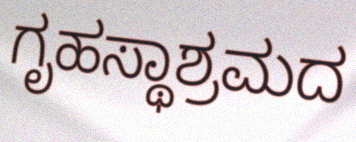
ಗೃಹಸ್ಥಾಶ್ರಮದ